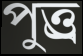
পুত্ত্র